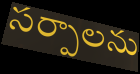
సర్పాలను